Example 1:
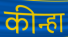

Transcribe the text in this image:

कीन्हा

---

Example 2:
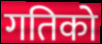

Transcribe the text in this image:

गतिको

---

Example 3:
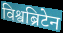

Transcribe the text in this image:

विश्वब्रिटेन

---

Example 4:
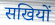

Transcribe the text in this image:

सखियों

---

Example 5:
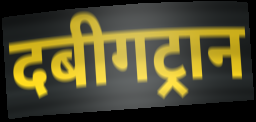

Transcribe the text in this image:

दबीगट्रान